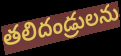
తలిదండ్రులను